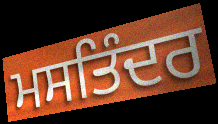
ਮਸਤਿੰਦਰ